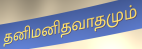
தனிமனிதவாதமும்